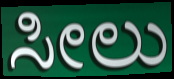
ಸೀಲು